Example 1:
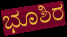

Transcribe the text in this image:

ಭೂಶಿರ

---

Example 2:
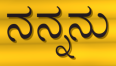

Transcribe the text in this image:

ನನ್ನನು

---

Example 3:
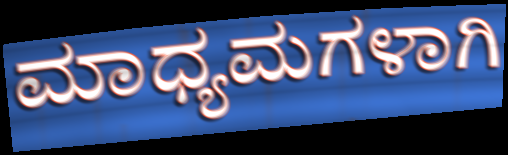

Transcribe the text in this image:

ಮಾಧ್ಯಮಗಳಾಗಿ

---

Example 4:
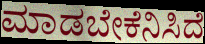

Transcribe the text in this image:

ಮಾಡಬೇಕೆನಿಸಿದೆ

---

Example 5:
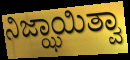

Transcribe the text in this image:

ನಿಜ್ಝಾಯಿತ್ವಾ